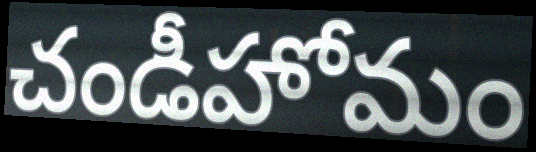
చండీహోమం